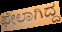
ಫೇಲಾಗಿದ್ದ